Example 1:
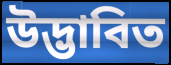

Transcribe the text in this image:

উদ্ভাবিত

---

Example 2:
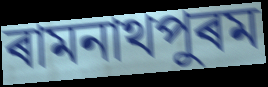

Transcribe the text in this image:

ৰামনাথপুৰম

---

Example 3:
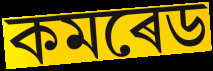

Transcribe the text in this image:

কমৰেড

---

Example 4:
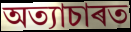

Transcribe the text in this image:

অত্যাচাৰত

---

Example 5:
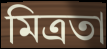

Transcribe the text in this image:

মিত্ৰতা